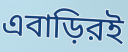
এবাড়িরই